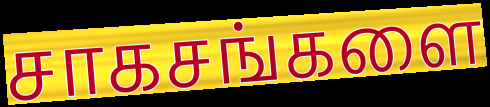
சாகசங்களை